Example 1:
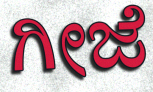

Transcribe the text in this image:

ಗೀಜೆ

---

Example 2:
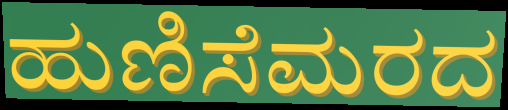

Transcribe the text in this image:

ಹುಣಿಸೆಮರದ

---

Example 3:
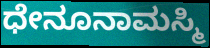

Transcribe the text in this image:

ಧೇನೂನಾಮಸ್ಮಿ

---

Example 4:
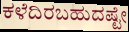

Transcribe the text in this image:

ಕಳೆದಿರಬಹುದಷ್ಟೇ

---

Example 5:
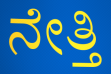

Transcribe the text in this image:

ನೇತ್ತಿ